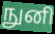
நுனி